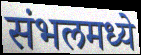
संभलमध्ये